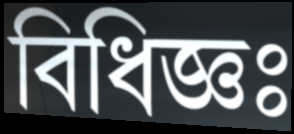
বিধিজ্ঞঃ